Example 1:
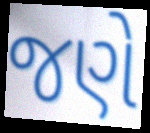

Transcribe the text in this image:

જણે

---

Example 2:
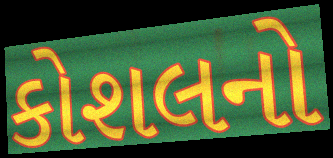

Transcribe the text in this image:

કોશલનો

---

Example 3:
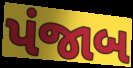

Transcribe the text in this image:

પંજાબ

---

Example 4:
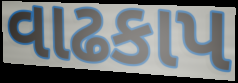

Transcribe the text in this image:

વાઢકાપ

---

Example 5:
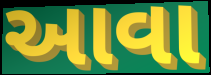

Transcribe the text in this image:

આવા